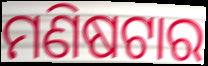
ମଣିଷଟାର